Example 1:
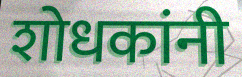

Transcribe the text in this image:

शोधकांनी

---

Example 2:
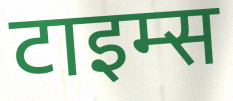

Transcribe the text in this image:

टाइम्स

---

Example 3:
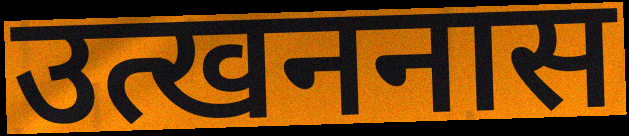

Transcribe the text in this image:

उत्खननास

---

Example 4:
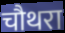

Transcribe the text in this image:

चौथरा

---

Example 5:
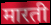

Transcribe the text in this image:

मारती